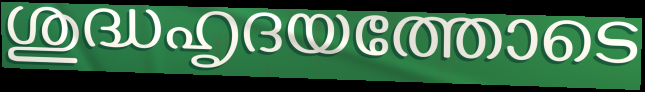
ശുദ്ധഹൃദയത്തോടെ